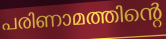
പരിണാമത്തിന്റെ